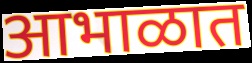
आभाळात